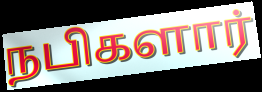
நபிகளார்